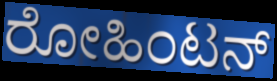
ರೋಹಿಂಟನ್